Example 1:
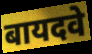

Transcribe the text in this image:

बायदवे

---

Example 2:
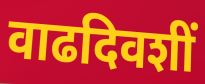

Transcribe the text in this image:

वाढदिवशीं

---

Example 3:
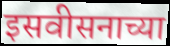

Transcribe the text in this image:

इसवीसनाच्या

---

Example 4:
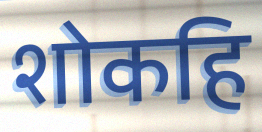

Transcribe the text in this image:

शोकहि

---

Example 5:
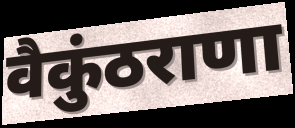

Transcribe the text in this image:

वैकुंठराणा